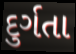
દુર્ગતા